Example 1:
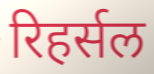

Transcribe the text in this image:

रिहर्सल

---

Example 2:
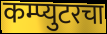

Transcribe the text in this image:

कम्प्युटरचा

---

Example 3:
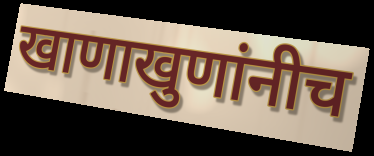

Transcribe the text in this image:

खाणाखुणांनीच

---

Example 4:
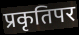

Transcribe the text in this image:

प्रकृतिपर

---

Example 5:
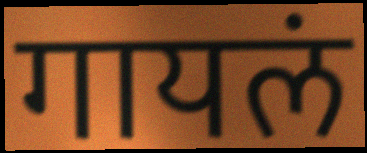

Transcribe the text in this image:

गायलं